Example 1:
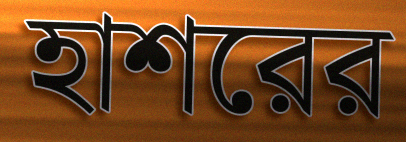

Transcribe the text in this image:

হাশরের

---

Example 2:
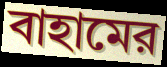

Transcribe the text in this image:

বাহামের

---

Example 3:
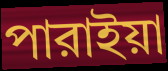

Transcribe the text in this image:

পারাইয়া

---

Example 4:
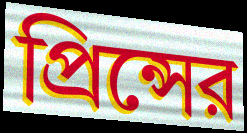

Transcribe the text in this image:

প্রিন্সের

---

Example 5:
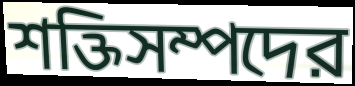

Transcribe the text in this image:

শক্তিসম্পদের